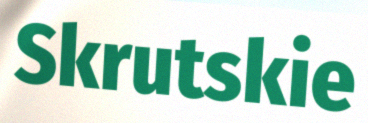
Skrutskie